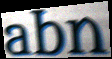
abn